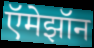
ऍमेझॉन